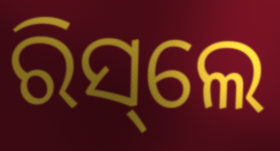
ରିସ୍‌ଲେ